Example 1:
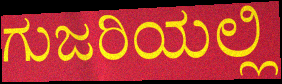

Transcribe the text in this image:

ಗುಜರಿಯಲ್ಲಿ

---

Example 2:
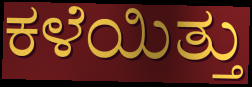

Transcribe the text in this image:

ಕಳೆಯಿತ್ತು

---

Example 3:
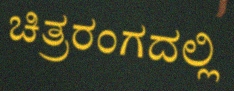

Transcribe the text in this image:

ಚಿತ್ರರಂಗದಲ್ಲಿ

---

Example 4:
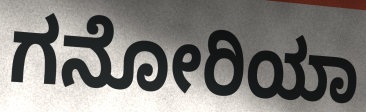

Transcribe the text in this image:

ಗನೋರಿಯಾ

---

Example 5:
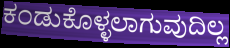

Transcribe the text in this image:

ಕಂಡುಕೊಳ್ಳಲಾಗುವುದಿಲ್ಲ